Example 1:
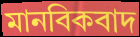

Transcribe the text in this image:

মানবিকবাদ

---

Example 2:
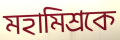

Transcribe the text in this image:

মহামিশ্রকে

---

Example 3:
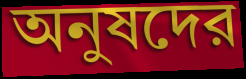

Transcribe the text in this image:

অনুষদের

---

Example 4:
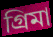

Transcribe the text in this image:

গ্রিমা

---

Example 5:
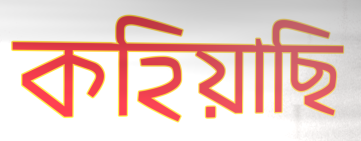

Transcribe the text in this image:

কহিয়াছি